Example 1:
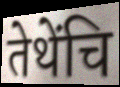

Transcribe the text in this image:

तेथेंचि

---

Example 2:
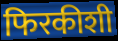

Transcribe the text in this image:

फिरकीशी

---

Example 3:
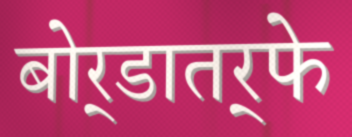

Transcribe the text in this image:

बोर्डातर्फे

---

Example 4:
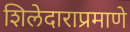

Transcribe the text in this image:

शिलेदाराप्रमाणे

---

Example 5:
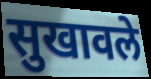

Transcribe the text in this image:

सुखावले